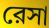
রেসা